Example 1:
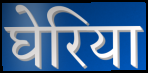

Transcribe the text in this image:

घेरिया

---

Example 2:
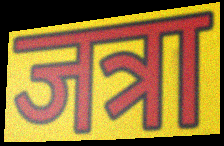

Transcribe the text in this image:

जत्रा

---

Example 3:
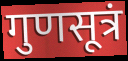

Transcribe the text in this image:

गुणसूत्रं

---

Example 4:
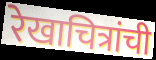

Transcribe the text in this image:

रेखाचित्रांची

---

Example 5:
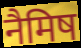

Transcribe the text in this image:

नैमिष